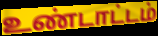
உண்டாட்டம்